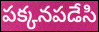
పక్కనపడేసి